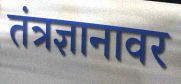
तंत्रज्ञानावर